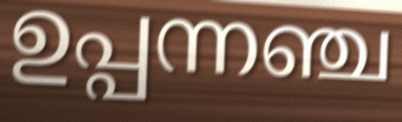
ഉപ്പന്നഞ്ച